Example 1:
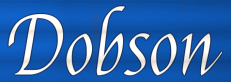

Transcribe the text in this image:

Dobson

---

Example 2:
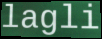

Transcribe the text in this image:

lagli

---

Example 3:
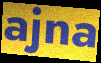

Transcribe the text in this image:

ajna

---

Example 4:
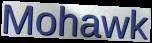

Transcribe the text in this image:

Mohawk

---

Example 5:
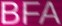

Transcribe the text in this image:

BFA